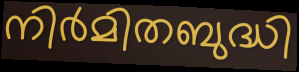
നിർമിതബുദ്ധി